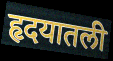
हृदयातली